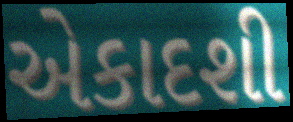
એકાદશી